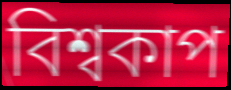
বিশ্বকাপ